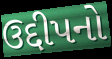
ઉદ્દીપનો